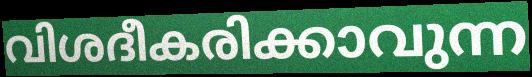
വിശദീകരിക്കാവുന്ന